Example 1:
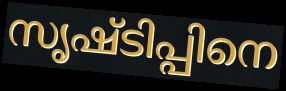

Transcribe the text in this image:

സൃഷ്ടിപ്പിനെ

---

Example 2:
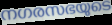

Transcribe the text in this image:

നഗരസഭയുടെ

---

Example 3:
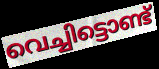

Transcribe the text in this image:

വെച്ചിട്ടൊണ്ട്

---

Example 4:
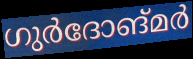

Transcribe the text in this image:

ഗുർദോങ്മർ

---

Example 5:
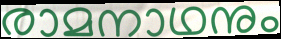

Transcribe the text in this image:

രാമനാഥനും